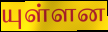
யுள்ளன